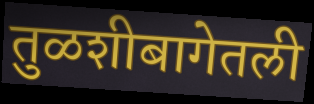
तुळशीबागेतली